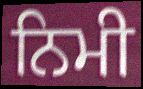
ਨਿਮੀ